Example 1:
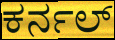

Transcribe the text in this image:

ಕರ್ನಲ್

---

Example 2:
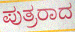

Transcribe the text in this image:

ಪುತ್ರರಾದ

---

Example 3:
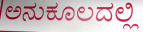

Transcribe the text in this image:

ಅನುಕೂಲದಲ್ಲಿ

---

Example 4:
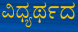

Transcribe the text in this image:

ವಿಧ್ಯರ್ಥದ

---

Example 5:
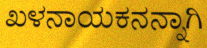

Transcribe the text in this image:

ಖಳನಾಯಕನನ್ನಾಗಿ